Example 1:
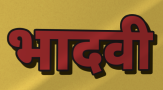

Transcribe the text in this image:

भादवी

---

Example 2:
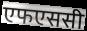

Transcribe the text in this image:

एफएससी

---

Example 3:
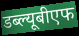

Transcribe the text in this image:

डब्ल्यूबीएफ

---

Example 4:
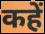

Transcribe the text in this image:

कहें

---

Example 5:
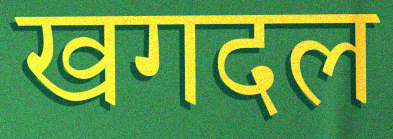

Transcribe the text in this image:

खगदल